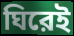
ঘিরেই